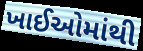
ખાઈઓમાંથી